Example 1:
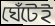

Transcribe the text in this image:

ঘেঁটেই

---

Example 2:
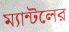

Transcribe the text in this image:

ম্যান্টলের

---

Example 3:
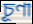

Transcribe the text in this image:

চূণা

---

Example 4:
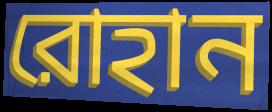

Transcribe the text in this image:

রোহান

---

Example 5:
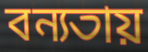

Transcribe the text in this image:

বন্যতায়